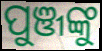
ପୁଞ୍ଜଙ୍କୁ